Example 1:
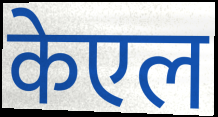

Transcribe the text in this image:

केएल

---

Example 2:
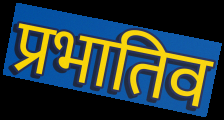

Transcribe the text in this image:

प्रभातिव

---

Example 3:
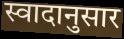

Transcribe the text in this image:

स्वादानुसार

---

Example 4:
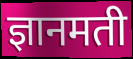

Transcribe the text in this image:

ज्ञानमती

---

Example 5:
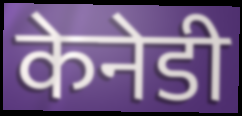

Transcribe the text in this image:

केनेडी